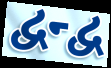
દ્વન્દ્વ